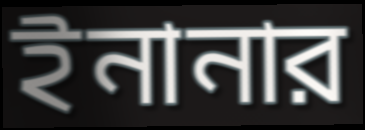
ইনানার